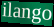
ilango